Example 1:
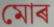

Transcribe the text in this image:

মোৰ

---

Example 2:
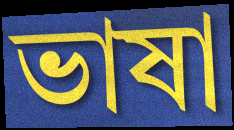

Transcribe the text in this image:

ভাষা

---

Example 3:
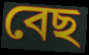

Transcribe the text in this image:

বেছ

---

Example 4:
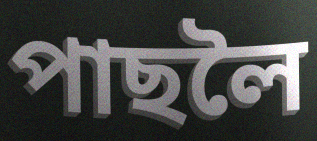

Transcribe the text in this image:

পাছলৈ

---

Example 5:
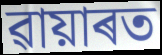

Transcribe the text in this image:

ৱায়াৰত